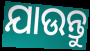
ଯାଉନ୍ତୁ